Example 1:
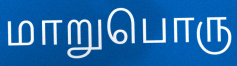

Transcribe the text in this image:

மாறுபொரு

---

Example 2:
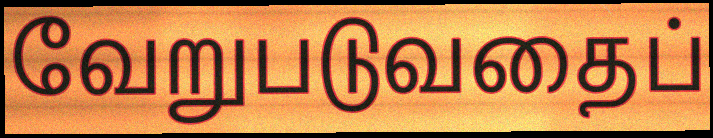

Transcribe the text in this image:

வேறுபடுவதைப்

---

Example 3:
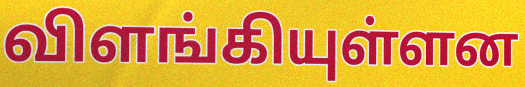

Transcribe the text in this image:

விளங்கியுள்ளன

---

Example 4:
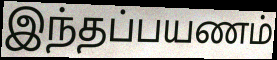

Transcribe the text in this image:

இந்தப்பயணம்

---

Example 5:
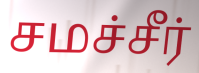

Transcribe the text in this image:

சமச்சீர்